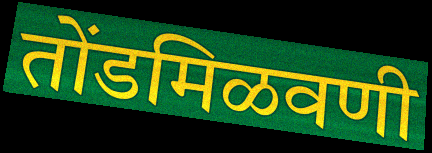
तोंडमिळवणी